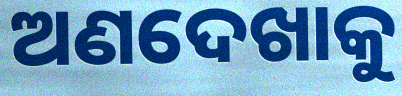
ଅଣଦେଖାକୁ